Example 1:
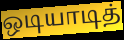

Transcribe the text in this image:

ஒடியாடித்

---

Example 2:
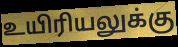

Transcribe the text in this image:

உயிரியலுக்கு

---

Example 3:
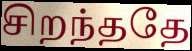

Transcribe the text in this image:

சிறந்ததே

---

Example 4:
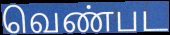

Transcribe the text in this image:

வெண்பட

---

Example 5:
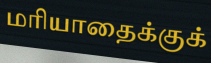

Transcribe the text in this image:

மரியாதைக்குக்